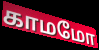
காமமோ